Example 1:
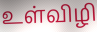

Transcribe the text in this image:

உள்விழி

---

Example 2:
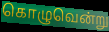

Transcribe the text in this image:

கொழுவென்று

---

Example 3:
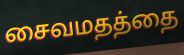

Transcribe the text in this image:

சைவமதத்தை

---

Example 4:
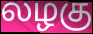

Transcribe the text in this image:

லழகு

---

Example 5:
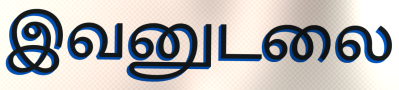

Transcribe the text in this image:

இவனுடலை